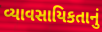
વ્યાવસાયિકતાનું